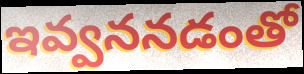
ఇవ్వననడంతో